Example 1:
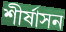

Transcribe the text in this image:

শীর্ষাসন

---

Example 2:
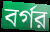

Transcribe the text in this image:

বর্গর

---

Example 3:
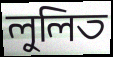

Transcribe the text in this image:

লুলিত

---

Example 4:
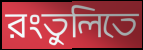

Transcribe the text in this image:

রংতুলিতে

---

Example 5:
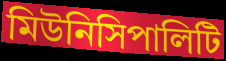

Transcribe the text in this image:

মিউনিসিপালিটি